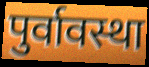
पुर्वावस्था